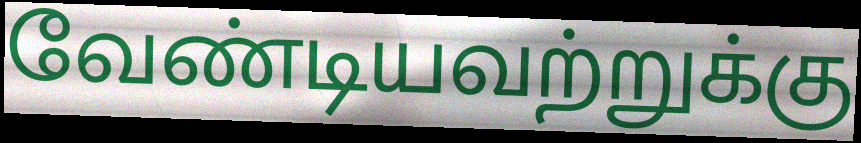
வேண்டியவற்றுக்கு